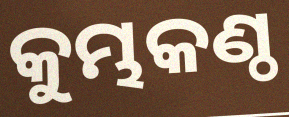
କୁମ୍ଭକଣ୍ଠ